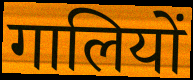
गालियों